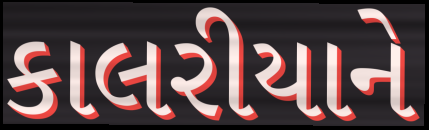
કાલરીયાને